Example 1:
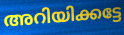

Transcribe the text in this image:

അറിയിക്കട്ടേ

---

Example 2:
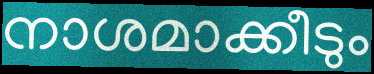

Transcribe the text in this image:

നാശമാക്കീടും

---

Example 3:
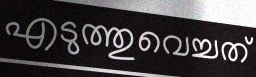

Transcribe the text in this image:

എടുത്തുവെച്ചത്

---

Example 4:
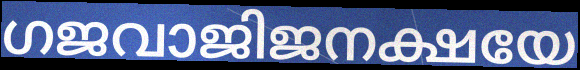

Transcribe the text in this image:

ഗജവാജിജനക്ഷയേ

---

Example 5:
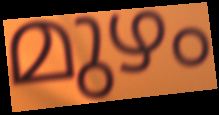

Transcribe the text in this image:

മുഴം